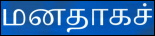
மனதாகச்